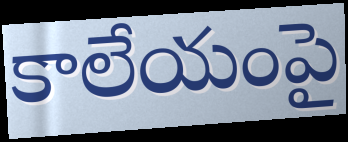
కాలేయంపై